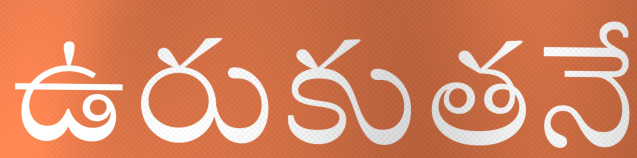
ఉరుకుతనే